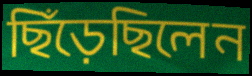
ছিঁড়েছিলেন